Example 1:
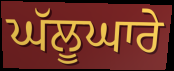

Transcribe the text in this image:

ਘੱਲੂਘਾਰੇ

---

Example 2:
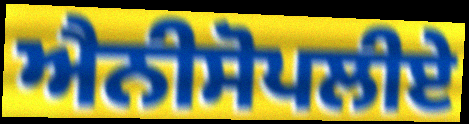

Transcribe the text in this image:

ਐਨੀਸੋਪਲੀਏ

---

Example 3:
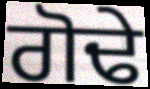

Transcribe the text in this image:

ਗੋਢੇ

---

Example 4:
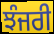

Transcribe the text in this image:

ਝੰਜਰੀ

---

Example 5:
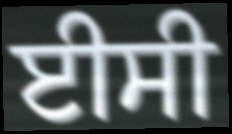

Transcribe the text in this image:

ਈਸੀ